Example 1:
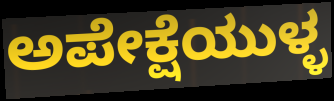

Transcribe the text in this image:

ಅಪೇಕ್ಷೆಯುಳ್ಳ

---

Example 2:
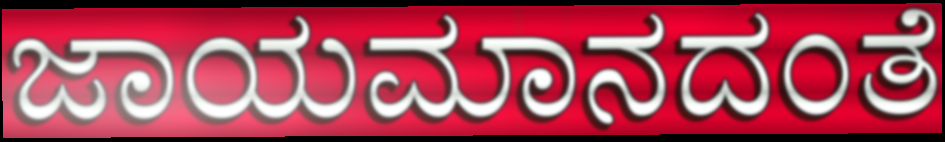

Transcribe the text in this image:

ಜಾಯಮಾನದಂತೆ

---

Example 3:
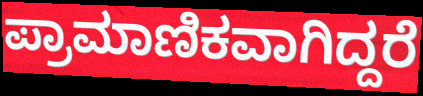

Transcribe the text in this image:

ಪ್ರಾಮಾಣಿಕವಾಗಿದ್ದರೆ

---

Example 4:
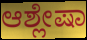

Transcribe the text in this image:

ಆಶ್ಲೇಷಾ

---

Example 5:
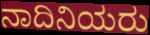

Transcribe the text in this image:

ನಾದಿನಿಯರು